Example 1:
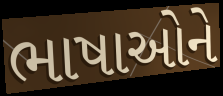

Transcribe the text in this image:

ભાષાઓને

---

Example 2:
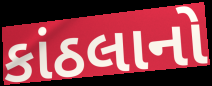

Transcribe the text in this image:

કાંઠલાનો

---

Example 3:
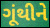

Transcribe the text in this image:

ગૂંથીને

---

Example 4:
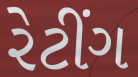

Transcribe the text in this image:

રેટીંગ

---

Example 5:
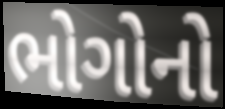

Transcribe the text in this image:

ભોગોનો